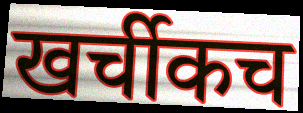
खर्चीकच